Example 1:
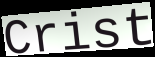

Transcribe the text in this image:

Crist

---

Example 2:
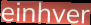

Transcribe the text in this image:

einhver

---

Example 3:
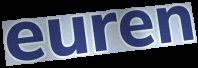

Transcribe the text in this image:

euren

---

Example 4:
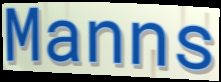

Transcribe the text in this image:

Manns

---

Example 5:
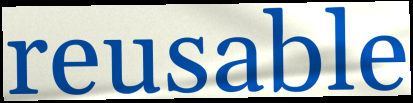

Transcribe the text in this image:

reusable